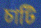
চাটি